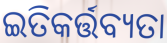
ଇତିକର୍ତ୍ତବ୍ୟତା